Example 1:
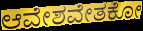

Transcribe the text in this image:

ಆವೇಶವೇತಕೋ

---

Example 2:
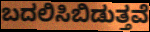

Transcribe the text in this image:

ಬದಲಿಸಿಬಿಡುತ್ತವೆ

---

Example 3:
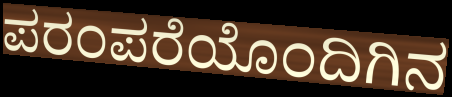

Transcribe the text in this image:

ಪರಂಪರೆಯೊಂದಿಗಿನ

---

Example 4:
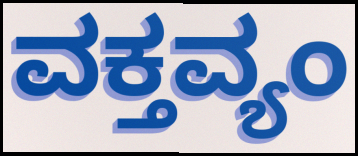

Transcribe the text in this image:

ವಕ್ತವ್ಯಂ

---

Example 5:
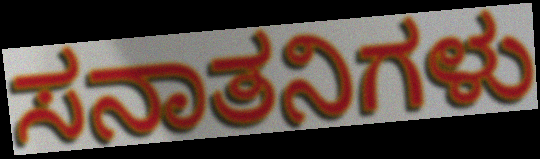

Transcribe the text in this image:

ಸನಾತನಿಗಳು